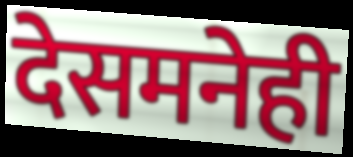
देसमनेही